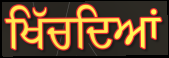
ਖਿੱਚਦਿਆਂ